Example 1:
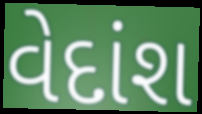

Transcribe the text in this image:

વેદાંશ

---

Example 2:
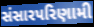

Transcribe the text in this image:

સંસારપરિણામી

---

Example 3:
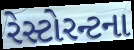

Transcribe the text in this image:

રેસ્ટોરન્ટના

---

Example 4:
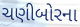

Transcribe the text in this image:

ચણીબોરના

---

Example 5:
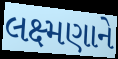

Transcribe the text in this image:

લક્ષ્મણાને